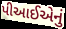
પીઆઈએનું